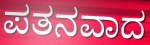
ಪತನವಾದ